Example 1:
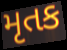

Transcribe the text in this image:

મૃતક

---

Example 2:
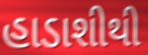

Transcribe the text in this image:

હાડાશીથી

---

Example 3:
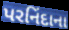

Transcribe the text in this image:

પરનિંદાના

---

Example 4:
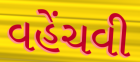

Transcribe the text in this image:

વહેંચવી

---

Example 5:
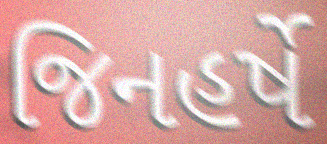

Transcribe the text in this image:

જિનહર્ષે